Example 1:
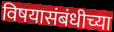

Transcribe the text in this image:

विषयासंबंधीच्या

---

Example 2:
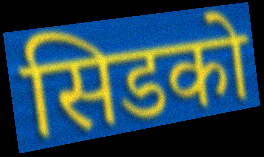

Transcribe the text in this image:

सिडको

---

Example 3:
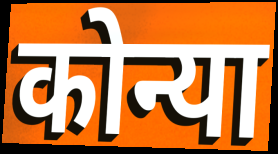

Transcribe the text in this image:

कोन्या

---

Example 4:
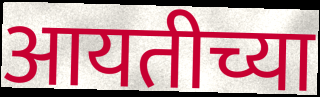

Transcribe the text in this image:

आयतीच्या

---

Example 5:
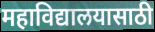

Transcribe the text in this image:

महाविद्यालयासाठी